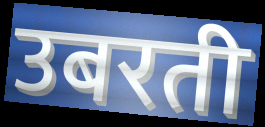
उबरती